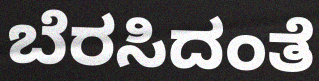
ಬೆರಸಿದಂತೆ